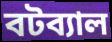
বটব্যাল